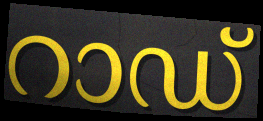
റാഡ്